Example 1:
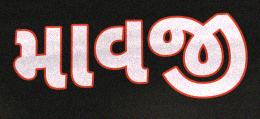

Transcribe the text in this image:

માવજી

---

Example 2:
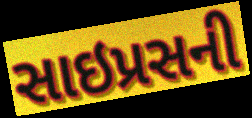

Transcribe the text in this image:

સાઇપ્રસની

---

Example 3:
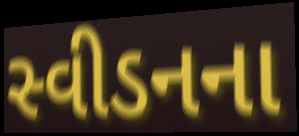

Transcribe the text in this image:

સ્વીડનના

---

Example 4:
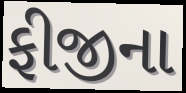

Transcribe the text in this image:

ફીજીના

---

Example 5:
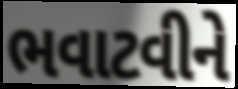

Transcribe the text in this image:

ભવાટવીને